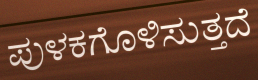
ಪುಳಕಗೊಳಿಸುತ್ತದೆ